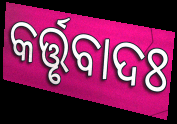
କର୍ତ୍ତୃବାଦଃ